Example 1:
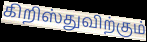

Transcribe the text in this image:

கிறிஸ்துவிற்கும்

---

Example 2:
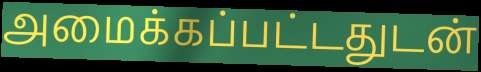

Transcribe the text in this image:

அமைக்கப்பட்டதுடன்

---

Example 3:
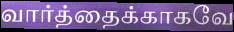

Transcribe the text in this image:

வார்த்தைக்காகவே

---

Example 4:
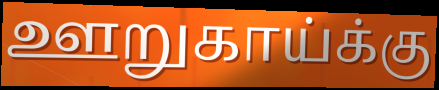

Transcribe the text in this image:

ஊறுகாய்க்கு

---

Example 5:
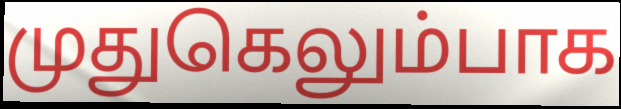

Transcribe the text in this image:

முதுகெலும்பாக